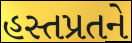
હસ્તપ્રતને